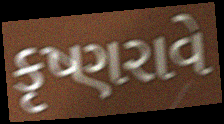
કૃષ્ણરાવે